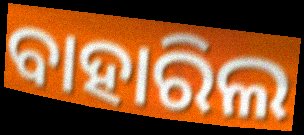
ବାହାରିଲ